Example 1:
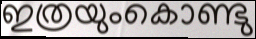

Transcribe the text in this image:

ഇത്രയുംകൊണ്ടു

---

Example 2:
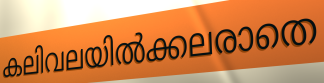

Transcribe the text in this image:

കലിവലയിൽക്കലരാതെ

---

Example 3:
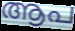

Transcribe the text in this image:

ആപ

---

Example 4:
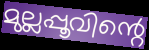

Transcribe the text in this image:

മുല്ലപ്പൂവിന്റെ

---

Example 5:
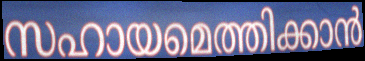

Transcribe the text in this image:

സഹായമെത്തിക്കാൻ